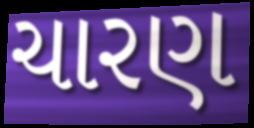
ચારણ